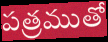
పత్రముతో